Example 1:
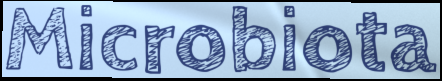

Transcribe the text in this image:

Microbiota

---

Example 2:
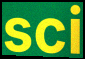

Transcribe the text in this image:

sci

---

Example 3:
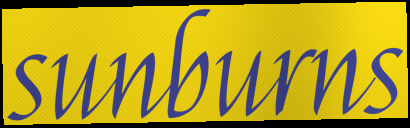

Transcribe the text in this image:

sunburns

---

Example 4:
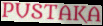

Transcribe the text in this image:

PUSTAKA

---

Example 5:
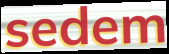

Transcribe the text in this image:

sedem